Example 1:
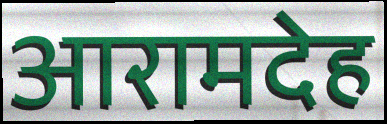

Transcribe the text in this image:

आरामदेह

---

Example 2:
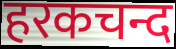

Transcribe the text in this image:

हरकचन्द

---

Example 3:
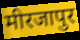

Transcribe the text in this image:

मीरजापुर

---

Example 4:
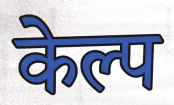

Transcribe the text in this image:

केल्प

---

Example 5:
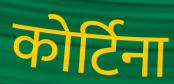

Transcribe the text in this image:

कोर्टिना